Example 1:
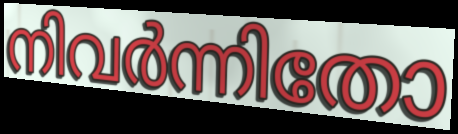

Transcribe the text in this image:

നിവർന്നിതോ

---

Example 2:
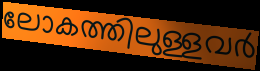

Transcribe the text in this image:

ലോകത്തിലുള്ളവർ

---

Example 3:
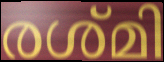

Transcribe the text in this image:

രശ്മി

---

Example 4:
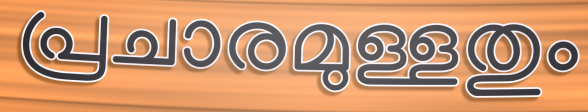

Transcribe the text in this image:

പ്രചാരമുള്ളതും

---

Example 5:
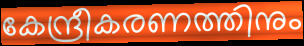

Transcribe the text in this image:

കേന്ദ്രീകരണത്തിനും